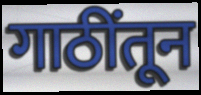
गाठींतून